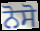
ਨੋਸੋ